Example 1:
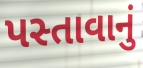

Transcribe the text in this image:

પસ્તાવાનું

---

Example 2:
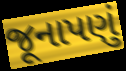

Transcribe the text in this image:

જૂનાપણું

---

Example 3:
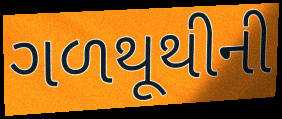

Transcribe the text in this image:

ગળથૂથીની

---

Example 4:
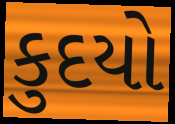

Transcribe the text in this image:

કુદયો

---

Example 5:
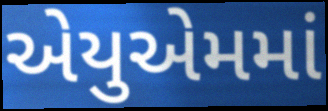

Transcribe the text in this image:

એયુએમમાં